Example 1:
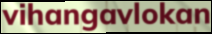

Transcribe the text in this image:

vihangavlokan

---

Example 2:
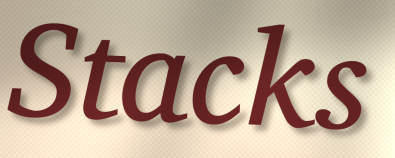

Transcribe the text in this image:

Stacks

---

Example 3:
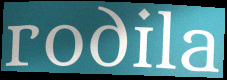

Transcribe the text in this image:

rodila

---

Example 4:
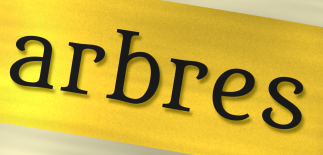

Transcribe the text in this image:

arbres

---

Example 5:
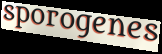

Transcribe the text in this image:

sporogenes